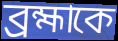
ব্রহ্মাকে